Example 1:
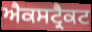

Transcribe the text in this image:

ਐਕਸਟ੍ਰੈਕਟ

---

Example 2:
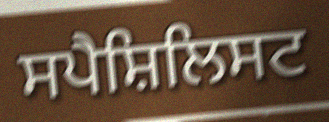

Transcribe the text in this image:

ਸਪੈਸ਼ਿਲਿਸਟ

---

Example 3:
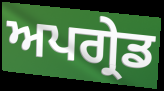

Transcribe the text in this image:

ਅਪਗ੍ਰੇਡ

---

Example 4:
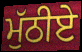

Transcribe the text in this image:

ਮੁੱਠੀਏ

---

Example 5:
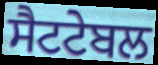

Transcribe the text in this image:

ਸੈਟਟੇਬਲ